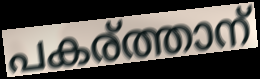
പകര്ത്താന്